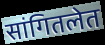
सांगितलेत